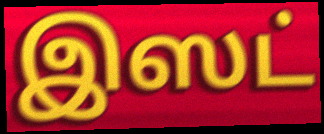
இஸட்